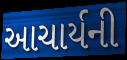
આચાર્યની